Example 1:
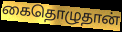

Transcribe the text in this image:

கைதொழுதான்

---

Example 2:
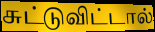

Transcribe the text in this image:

சுட்டுவிட்டால்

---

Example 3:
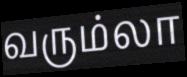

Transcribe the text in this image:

வரும்லா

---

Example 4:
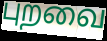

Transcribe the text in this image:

புறவை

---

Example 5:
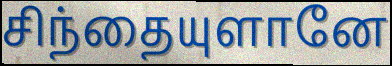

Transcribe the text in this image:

சிந்தையுளானே